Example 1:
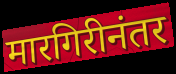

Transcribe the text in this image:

मारगिरीनंतर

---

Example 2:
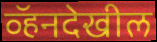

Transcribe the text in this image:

व्हॅनदेखील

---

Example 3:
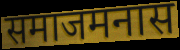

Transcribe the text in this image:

समाजमनास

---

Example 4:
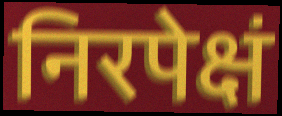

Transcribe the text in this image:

निरपेक्षं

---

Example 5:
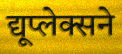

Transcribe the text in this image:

द्यूप्लेक्सने